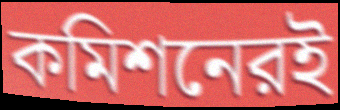
কমিশনেরই